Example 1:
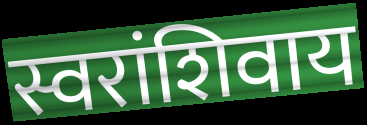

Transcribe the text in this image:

स्वरांशिवाय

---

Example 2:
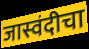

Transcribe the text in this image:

जास्वंदीचा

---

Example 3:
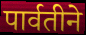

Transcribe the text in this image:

पार्वतीने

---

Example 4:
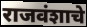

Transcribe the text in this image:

राजवंशाचे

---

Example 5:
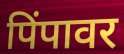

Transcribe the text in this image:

पिंपावर